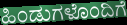
ಹಿಂಡುಗಳೊಂದಿಗೆ